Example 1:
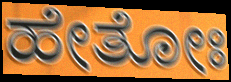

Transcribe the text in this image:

ಹೇತೋಃ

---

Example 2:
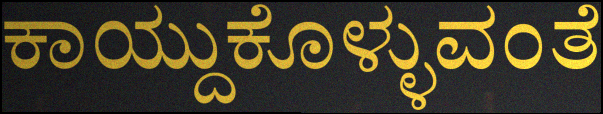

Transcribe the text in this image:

ಕಾಯ್ದುಕೊಳ್ಳುವಂತೆ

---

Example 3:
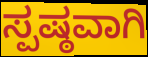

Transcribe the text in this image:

ಸ್ಪಷ್ಠವಾಗಿ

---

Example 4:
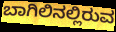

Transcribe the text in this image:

ಬಾಗಿಲಿನಲ್ಲಿರುವ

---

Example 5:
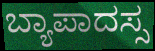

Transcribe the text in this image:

ಬ್ಯಾಪಾದಸ್ಸ